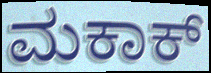
ಮಕಾಕ್